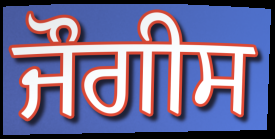
ਜੌਗੀਸ